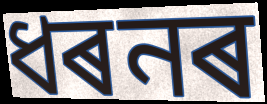
ধৰনৰ